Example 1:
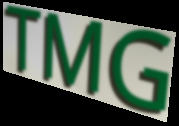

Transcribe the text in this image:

TMG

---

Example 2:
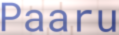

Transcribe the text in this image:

Paaru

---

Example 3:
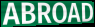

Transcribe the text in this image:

ABROAD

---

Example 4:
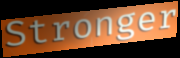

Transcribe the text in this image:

Stronger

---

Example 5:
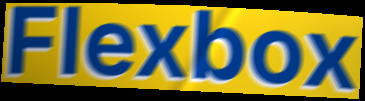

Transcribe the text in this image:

Flexbox